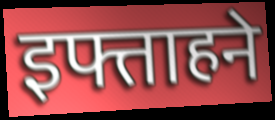
इफ्ताहने